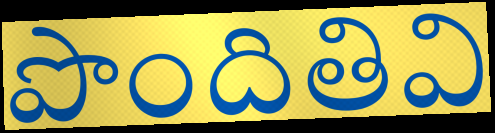
పొందితివి